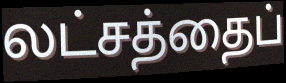
லட்சத்தைப்